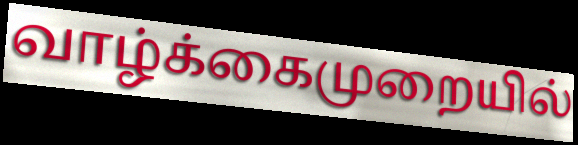
வாழ்க்கைமுறையில்